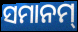
ସମାନମ୍